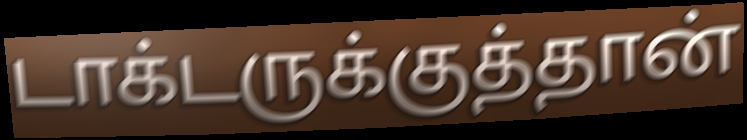
டாக்டருக்குத்தான்